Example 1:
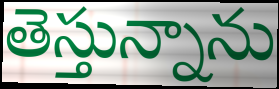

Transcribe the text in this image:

తెస్తున్నాను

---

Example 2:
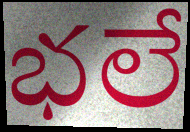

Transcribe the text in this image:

భలే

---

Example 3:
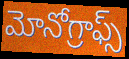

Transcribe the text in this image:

మోనోగ్రాఫ్స్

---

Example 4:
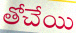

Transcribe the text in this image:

తోచేయి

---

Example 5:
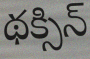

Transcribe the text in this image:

థక్సిన్